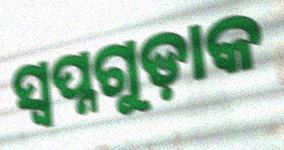
ସ୍ୱପ୍ନଗୁଡ଼ାକ